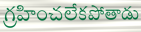
గ్రహించలేకపోతాడు